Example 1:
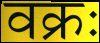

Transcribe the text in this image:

वक्रः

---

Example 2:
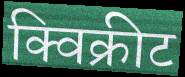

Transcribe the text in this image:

क्विक्रीट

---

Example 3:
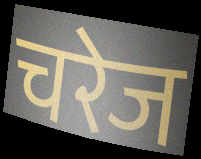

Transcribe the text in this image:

चरेज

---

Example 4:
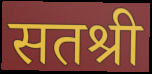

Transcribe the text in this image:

सतश्री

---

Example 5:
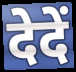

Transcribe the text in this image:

देदें